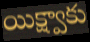
యిక్ష్వాకు